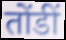
तोंडीं